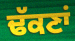
ਢੱਕਣਾਂ